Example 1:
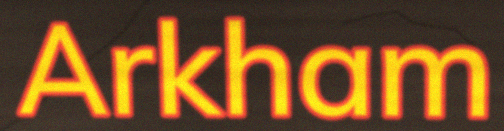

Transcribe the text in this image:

Arkham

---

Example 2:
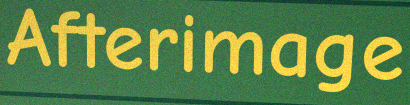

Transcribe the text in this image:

Afterimage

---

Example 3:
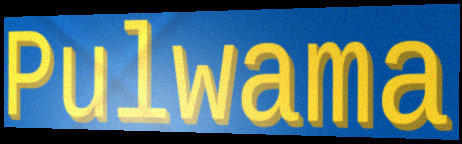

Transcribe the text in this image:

Pulwama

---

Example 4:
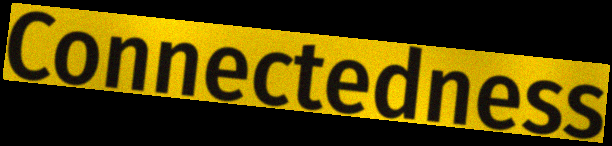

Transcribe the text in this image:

Connectedness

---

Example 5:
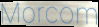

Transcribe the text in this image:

Morcom